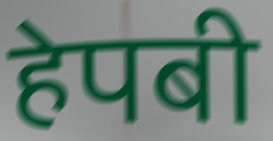
हेपबी